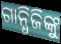
ଗାନ୍ଧିଜିଙ୍କୁ